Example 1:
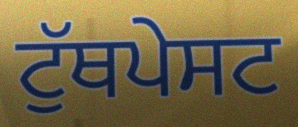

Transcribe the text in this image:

ਟੁੱਥਪੇਸਟ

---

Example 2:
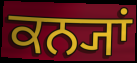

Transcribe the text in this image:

ਕਨ੍ਯਾਂ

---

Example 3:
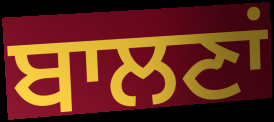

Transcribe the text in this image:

ਬਾਲਣਾਂ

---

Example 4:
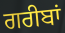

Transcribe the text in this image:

ਗਰੀਬਾਂ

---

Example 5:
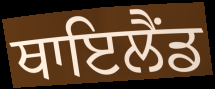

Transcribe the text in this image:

ਥਾਇਲੈਂਡ